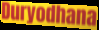
Duryodhana